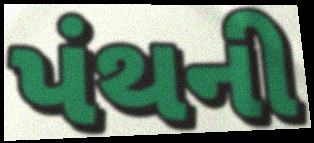
પંથની